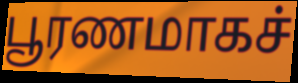
பூரணமாகச்